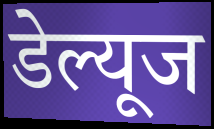
डेल्यूज